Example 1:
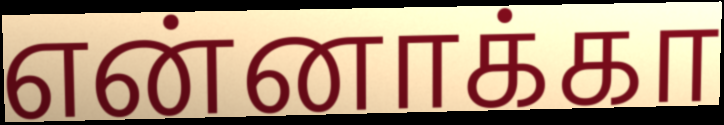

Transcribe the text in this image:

என்னாக்கா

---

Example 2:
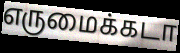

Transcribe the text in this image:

எருமைக்கடா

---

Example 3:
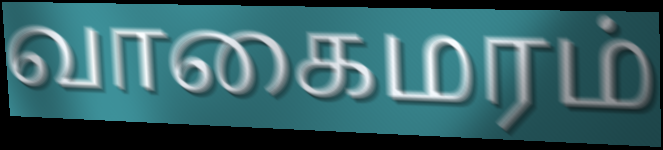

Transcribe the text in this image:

வாகைமரம்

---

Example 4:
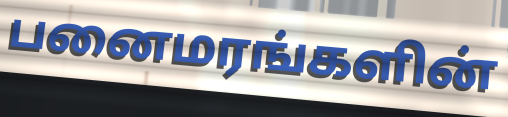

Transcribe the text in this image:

பனைமரங்களின்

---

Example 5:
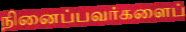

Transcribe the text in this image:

நினைப்பவர்களைப்